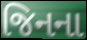
જિનના